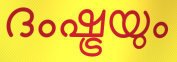
ദംഷ്ട്രയും